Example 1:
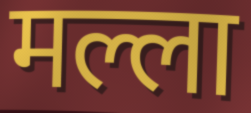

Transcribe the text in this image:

मल्ला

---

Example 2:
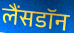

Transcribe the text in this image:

लैंसडॉन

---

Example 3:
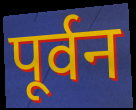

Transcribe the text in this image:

पूर्वन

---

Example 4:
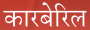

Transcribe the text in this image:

कारबेरिल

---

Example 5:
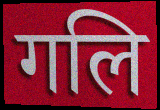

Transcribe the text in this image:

गलि